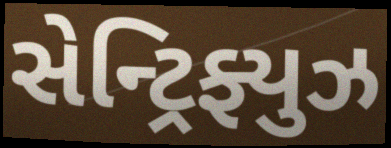
સેન્ટ્રિફ્યુઝ